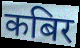
कबिर